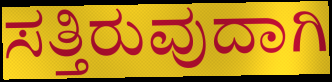
ಸತ್ತಿರುವುದಾಗಿ